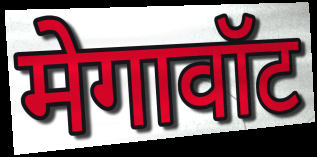
मेगावॉट